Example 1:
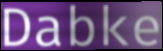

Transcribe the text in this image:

Dabke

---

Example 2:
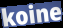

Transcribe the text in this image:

koine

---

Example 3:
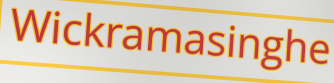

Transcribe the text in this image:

Wickramasinghe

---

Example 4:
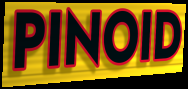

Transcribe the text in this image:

PINOID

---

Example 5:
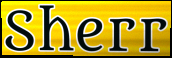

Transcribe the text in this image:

Sherr